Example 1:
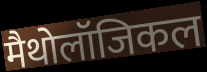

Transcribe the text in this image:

मैथोलॉजिकल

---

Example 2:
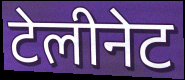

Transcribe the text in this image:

टेलीनेट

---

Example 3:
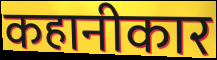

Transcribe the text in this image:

कहानीकार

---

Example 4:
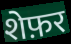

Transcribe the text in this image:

शेफ़र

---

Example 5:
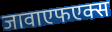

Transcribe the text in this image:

जावाएफएक्स